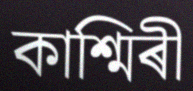
কাশ্মিৰী